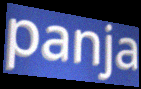
panja